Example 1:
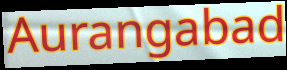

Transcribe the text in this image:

Aurangabad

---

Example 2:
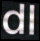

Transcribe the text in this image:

dl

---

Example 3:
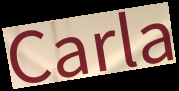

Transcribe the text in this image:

Carla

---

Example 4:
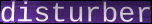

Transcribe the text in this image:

disturber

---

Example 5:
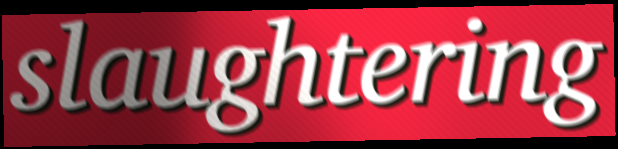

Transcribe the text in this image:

slaughtering